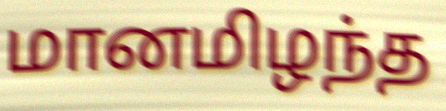
மானமிழந்த